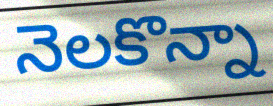
నెలకొన్నా